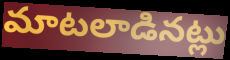
మాటలాడినట్లు